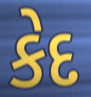
કેદ